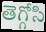
తెగ్గోసి